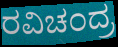
ರವಿಚಂದ್ರ